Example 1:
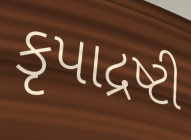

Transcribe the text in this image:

કૃપાદ્રષ્ટી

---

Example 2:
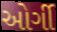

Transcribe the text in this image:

ઓર્ગી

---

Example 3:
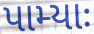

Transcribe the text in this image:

પામ્યાઃ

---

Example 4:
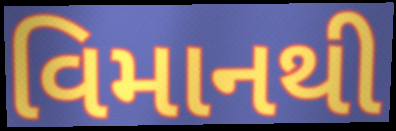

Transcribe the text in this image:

વિમાનથી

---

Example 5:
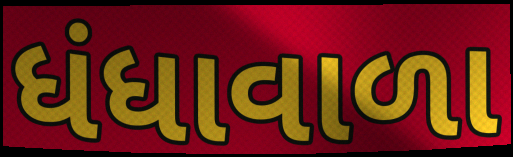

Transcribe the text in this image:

ધંધાવાળા